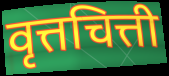
वृत्तचित्ती